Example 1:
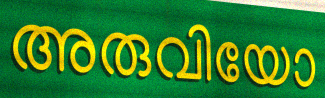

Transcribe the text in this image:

അരുവിയോ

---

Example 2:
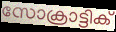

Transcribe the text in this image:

സോക്രാട്ടിക്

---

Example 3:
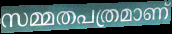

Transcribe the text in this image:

സമ്മതപത്രമാണ്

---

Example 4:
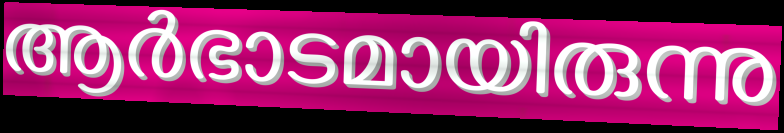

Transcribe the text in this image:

ആർഭാടമായിരുന്നു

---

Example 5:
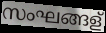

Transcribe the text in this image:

സംഘങ്ങള്